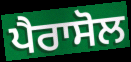
ਪੈਰਾਸੋਲ